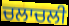
ਚਲਾਚਲੀ